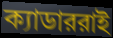
ক্যাডাররাই